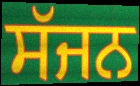
ਸੱਜਨ